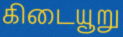
கிடையூறு